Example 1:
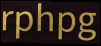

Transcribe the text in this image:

rphpg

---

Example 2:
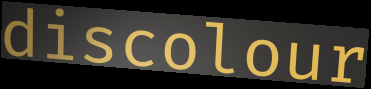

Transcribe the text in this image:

discolour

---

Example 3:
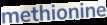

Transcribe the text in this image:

methionine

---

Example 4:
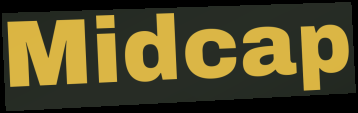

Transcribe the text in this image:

Midcap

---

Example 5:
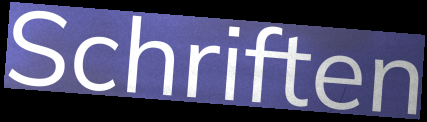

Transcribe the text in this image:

Schriften